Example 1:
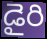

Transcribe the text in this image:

డైరి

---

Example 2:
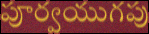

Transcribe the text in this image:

పూర్వయుగపు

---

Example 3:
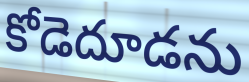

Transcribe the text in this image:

కోడెదూడను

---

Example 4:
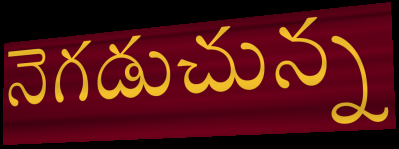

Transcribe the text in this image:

నెగడుచున్న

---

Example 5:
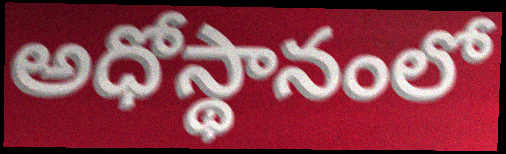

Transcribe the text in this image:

అధోస్థానంలో